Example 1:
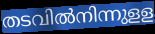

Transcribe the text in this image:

തടവിൽനിന്നുളള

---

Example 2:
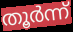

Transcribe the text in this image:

തൂർന്ന്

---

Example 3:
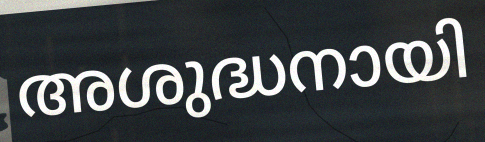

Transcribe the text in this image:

അശുദ്ധനായി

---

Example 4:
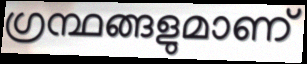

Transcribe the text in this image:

ഗ്രന്ഥങ്ങളുമാണ്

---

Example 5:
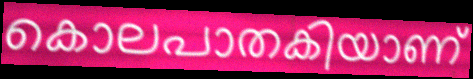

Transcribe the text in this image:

കൊലപാതകിയാണ്